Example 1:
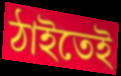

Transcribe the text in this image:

ঠাইতেই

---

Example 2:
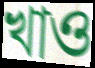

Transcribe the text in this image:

খাও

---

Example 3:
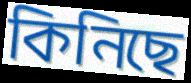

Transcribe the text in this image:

কিনিছে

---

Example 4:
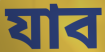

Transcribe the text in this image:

যাব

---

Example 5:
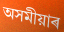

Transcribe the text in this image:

অসমীয়াৰ